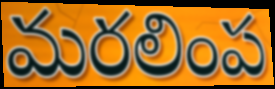
మరలింప